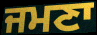
ਜਮਣਾ